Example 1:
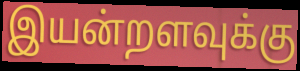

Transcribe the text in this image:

இயன்றளவுக்கு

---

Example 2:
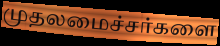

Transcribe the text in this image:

முதலமைச்சர்களை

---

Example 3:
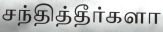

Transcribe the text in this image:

சந்தித்தீர்களா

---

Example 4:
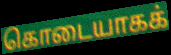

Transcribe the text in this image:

கொடையாகக்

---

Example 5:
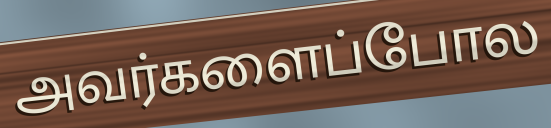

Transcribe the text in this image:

அவர்களைப்போல